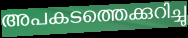
അപകടത്തെക്കുറിച്ചു